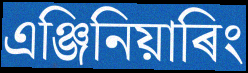
এঞ্জিনিয়াৰিং